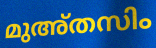
മുഅ്തസിം